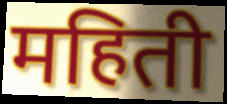
महिती